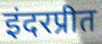
इंदरप्रीत